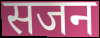
सजन